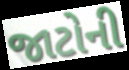
જાટોની